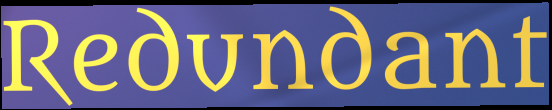
Redundant